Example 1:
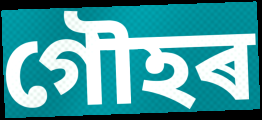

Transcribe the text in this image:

গৌহৰ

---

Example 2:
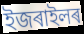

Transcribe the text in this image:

ইজৰাইলৰ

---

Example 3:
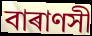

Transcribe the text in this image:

বাৰাণসী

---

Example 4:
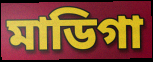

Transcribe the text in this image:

মাডিগা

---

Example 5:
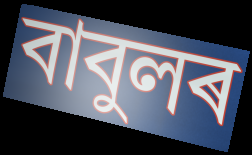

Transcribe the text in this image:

বাবুলৰ